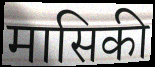
मासिकी